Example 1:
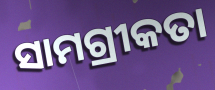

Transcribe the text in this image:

ସାମଗ୍ରୀକତା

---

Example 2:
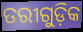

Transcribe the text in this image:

ତରୀଗୁଡ଼ିକ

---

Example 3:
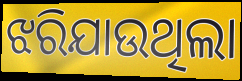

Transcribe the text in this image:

ଝରିଯାଉଥିଲା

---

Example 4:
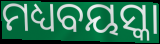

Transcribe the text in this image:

ମଧ୍ୟବୟସ୍କା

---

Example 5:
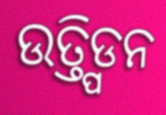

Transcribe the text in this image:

ଉତ୍ତ୍ପିଡନ